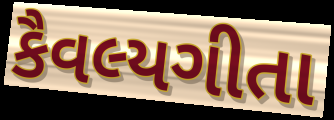
કૈવલ્યગીતા